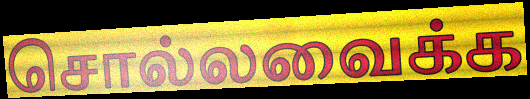
சொல்லவைக்க